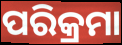
ପରିକ୍ରମା